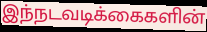
இந்நடவடிக்கைகளின்